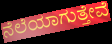
ನೆಲೆಯಾಗುತ್ತೇವೆ